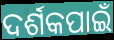
ଦର୍ଶକପାଇଁ